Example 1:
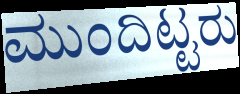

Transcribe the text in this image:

ಮುಂದಿಟ್ಟರು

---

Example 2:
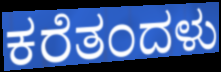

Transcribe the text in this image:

ಕರೆತಂದಳು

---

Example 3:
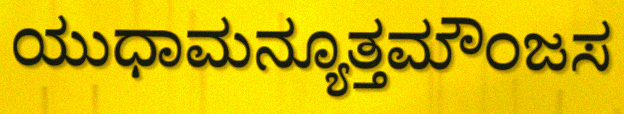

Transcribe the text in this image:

ಯುಧಾಮನ್ಯೂತ್ತಮೌಂಜಸ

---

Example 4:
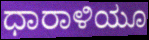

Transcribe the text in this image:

ಧಾರಾಳಿಯೂ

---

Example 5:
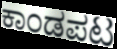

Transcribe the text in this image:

ಕಾಂಡಪಟ